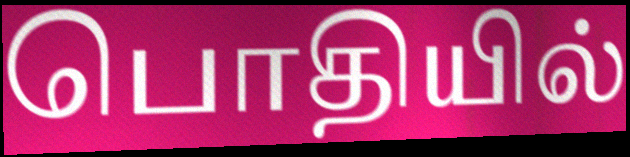
பொதியில்